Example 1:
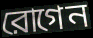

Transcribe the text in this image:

রোগেন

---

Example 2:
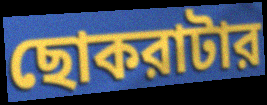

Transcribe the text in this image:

ছোকরাটার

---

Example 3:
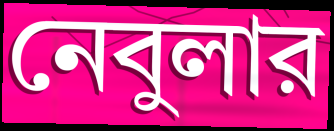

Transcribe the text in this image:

নেবুলার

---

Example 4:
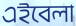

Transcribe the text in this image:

এইবেলা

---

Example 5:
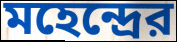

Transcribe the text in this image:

মহেন্দ্রের